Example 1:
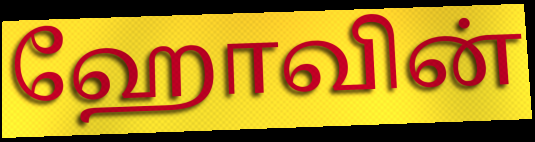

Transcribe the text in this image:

ஹோவின்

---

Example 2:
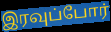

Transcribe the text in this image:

இரவுப்போர்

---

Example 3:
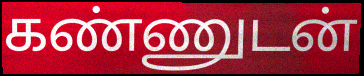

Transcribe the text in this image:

கண்ணுடன்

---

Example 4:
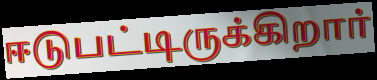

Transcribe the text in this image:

ஈடுபட்டிருக்கிறார்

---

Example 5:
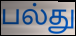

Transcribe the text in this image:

பல்து